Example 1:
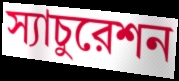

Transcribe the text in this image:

স্যাচুরেশন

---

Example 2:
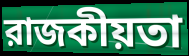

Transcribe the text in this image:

রাজকীয়তা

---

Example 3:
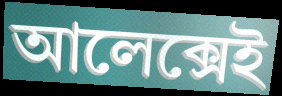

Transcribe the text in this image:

আলেক্সেই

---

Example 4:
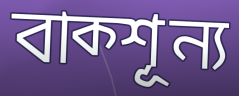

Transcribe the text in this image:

বাক্শূন্য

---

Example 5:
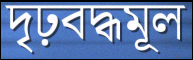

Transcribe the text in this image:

দৃঢ়বদ্ধমূল